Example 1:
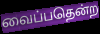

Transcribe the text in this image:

வைப்பதென்ற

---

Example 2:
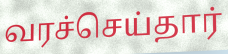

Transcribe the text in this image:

வரச்செய்தார்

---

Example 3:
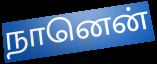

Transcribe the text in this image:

நானென்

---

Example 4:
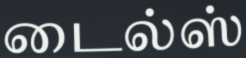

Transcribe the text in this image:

டைல்ஸ்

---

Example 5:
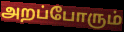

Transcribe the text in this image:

அறப்போரும்